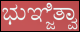
ಭುಞ್ಜಿತ್ವಾ